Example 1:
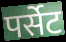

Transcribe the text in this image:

पर्सेट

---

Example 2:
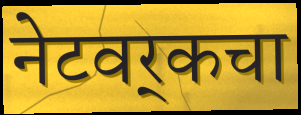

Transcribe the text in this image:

नेटवर्कचा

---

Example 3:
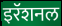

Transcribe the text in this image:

इरॅशनल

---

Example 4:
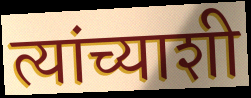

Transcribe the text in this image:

त्यांच्याशी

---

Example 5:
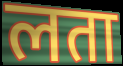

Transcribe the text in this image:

लता